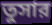
তুসার